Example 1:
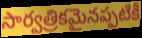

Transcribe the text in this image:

సార్వత్రికమైనప్పటికీ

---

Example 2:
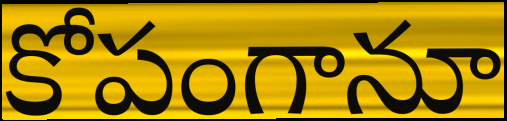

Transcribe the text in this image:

కోపంగానూ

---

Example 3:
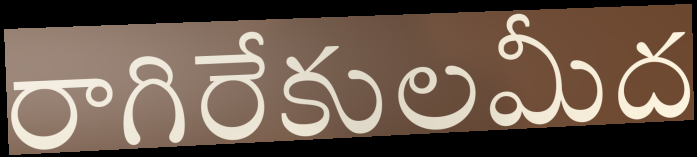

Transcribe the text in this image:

రాగిరేకులమీద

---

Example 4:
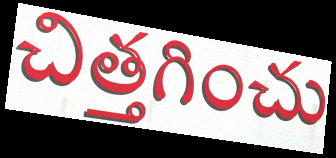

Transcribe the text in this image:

చిత్తగించు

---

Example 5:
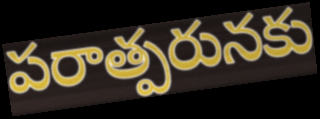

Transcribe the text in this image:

పరాత్పరునకు